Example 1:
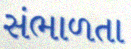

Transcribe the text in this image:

સંભાળતા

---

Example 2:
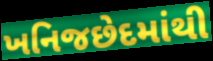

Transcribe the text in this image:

ખનિજછેદમાંથી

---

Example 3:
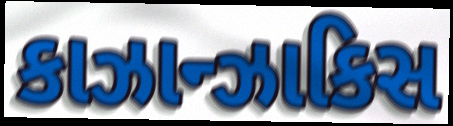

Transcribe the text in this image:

કાઝાન્ઝાકિસ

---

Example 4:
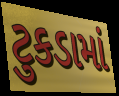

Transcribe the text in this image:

ટુકડામાં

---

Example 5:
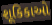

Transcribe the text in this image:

શૂકિકાઓ